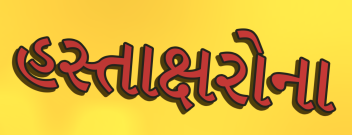
હસ્તાક્ષરોના